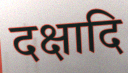
दक्षादि